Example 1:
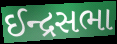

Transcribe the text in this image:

ઈન્દ્રસભા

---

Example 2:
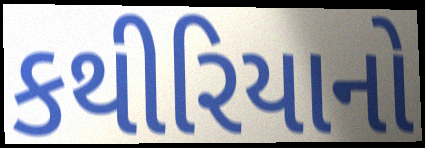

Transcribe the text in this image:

કથીરિયાનો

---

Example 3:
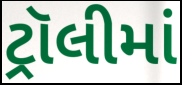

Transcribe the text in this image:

ટ્રૉલીમાં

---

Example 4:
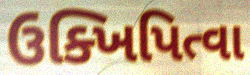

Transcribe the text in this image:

ઉક્ખિપિત્વા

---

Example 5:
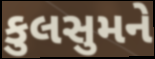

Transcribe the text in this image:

કુલસુમને